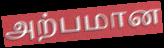
அற்பமான